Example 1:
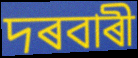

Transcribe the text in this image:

দৰবাৰী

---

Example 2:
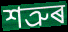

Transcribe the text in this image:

শত্ৰুৰ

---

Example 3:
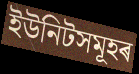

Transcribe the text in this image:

ইউনিটসমূহৰ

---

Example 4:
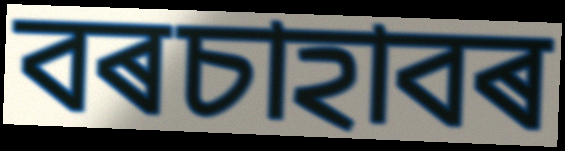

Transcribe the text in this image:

বৰচাহাবৰ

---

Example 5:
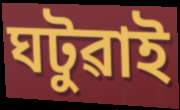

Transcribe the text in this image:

ঘটুৱাই